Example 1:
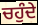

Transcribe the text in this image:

ਚਹੁੰਦੇ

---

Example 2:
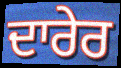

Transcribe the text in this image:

ਦਾਰੇਰ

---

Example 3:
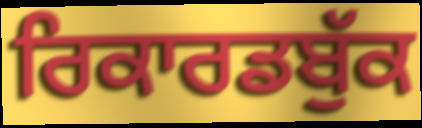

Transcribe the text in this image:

ਰਿਕਾਰਡਬੁੱਕ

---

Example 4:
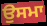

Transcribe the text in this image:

ਉਸਮਾ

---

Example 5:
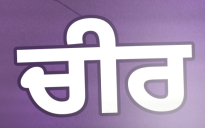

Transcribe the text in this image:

ਚੀਰ